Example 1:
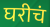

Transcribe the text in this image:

घरीचं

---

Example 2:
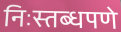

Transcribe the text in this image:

निःस्तब्धपणे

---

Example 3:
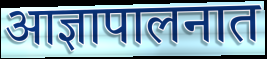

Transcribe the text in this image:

आज्ञापालनात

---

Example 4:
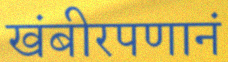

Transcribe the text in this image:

खंबीरपणानं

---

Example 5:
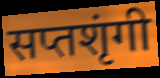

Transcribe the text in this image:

सप्तशृंगी